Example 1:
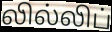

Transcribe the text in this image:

லில்லிப்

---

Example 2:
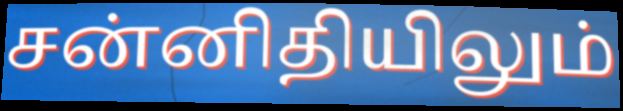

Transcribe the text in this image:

சன்னிதியிலும்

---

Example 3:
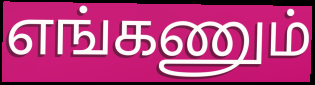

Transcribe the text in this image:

எங்கணும்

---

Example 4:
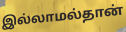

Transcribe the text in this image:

இல்லாமல்தான்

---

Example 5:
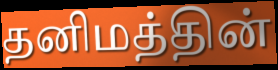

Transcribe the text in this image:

தனிமத்தின்